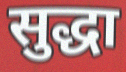
सुद्धा